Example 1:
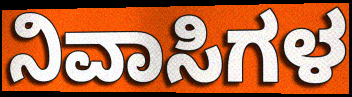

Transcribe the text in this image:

ನಿವಾಸಿಗಳ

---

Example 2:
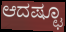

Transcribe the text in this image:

ಆದಷ್ಟೂ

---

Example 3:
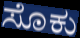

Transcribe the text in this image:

ಸೊಕು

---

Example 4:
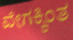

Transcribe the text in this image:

ವೇಗಕ್ಕಿಂತ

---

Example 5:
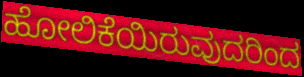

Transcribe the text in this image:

ಹೋಲಿಕೆಯಿರುವುದರಿಂದ